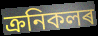
ক্ৰনিকলৰ